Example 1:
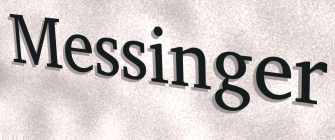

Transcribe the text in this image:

Messinger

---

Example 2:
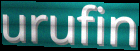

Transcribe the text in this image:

urufin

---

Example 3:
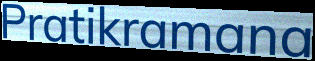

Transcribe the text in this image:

Pratikramana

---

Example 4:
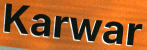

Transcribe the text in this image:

Karwar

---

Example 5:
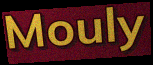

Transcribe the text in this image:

Mouly